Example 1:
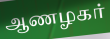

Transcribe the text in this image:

ஆணழகர்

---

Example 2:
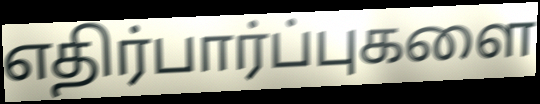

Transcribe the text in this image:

எதிர்பார்ப்புகளை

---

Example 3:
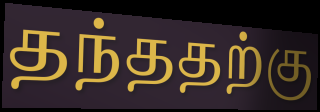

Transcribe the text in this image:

தந்ததற்கு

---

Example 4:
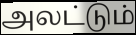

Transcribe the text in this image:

அலட்டும்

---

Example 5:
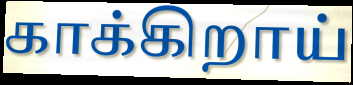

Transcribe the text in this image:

காக்கிறாய்